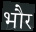
भौर